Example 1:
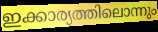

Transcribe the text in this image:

ഇക്കാര്യത്തിലൊന്നും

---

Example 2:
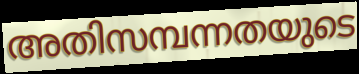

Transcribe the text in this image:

അതിസമ്പന്നതയുടെ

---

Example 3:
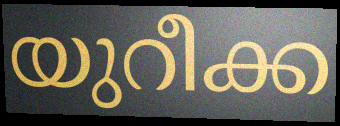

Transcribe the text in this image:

യുറീക്ക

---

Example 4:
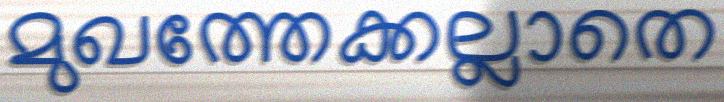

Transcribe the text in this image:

മുഖത്തേക്കല്ലാതെ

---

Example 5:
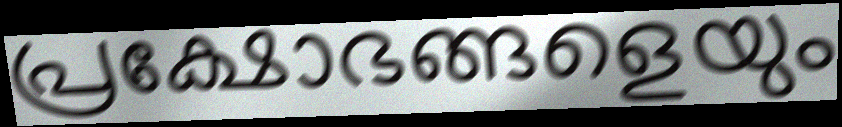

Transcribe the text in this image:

പ്രക്ഷോഭങ്ങളെയും